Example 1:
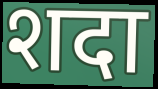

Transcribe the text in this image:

शदा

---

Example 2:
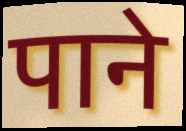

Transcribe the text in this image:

पाने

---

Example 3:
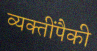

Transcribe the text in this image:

व्यक्‍तींपैकी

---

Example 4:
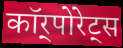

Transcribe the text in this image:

कॉर्पोरेट्‌स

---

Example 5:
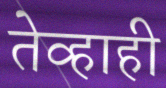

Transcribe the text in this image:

तेव्हाही